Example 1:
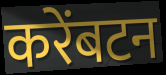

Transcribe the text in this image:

करेंबटन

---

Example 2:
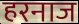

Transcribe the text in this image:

हरनाज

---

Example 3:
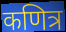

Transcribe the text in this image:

कणित्र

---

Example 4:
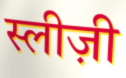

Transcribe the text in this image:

स्लीज़ी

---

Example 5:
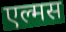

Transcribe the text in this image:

एल्मस